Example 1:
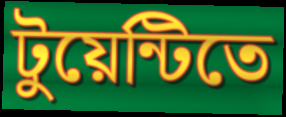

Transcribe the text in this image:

টুয়েন্টিতে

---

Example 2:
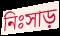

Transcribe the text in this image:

নিঃসাড়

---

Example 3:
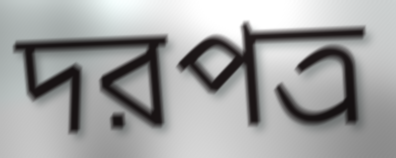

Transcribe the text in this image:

দরপত্র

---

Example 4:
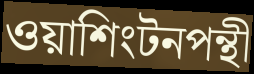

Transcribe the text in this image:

ওয়াশিংটনপন্থী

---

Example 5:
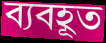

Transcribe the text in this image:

ব্যবহূত